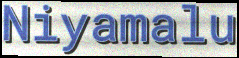
Niyamalu